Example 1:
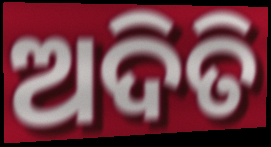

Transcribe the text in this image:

ଅଦିତି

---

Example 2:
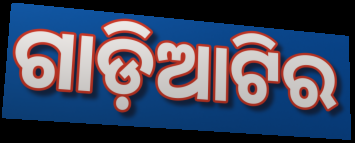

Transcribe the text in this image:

ଗାଡ଼ିଆଟିର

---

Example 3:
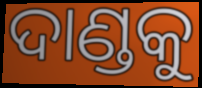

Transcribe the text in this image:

ଦାଣ୍ଡକୁ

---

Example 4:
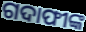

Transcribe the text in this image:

ଗଦାଫୀଙ୍କ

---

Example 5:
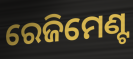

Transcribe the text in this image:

ରେଜିମେଣ୍ଟ